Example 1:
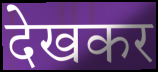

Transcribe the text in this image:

देखकर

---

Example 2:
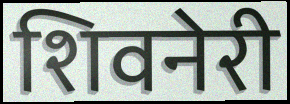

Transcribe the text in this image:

शिवनेरी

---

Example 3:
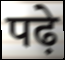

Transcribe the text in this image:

पढ़े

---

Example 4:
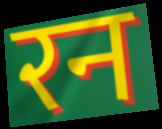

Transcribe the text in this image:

रन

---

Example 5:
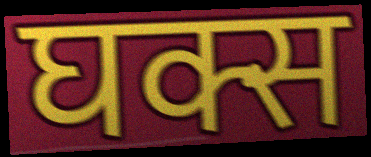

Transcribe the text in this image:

घक्स